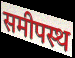
समीपस्थ